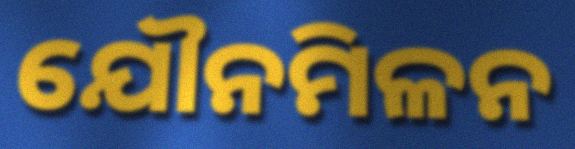
ଯୌନମିଳନ